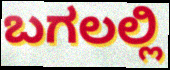
ಬಗಲಲ್ಲಿ